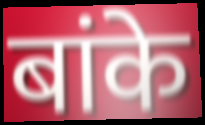
बांके